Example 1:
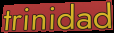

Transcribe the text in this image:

trinidad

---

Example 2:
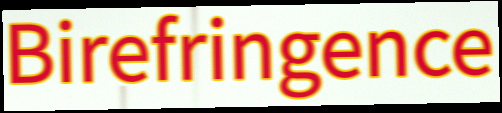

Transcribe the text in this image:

Birefringence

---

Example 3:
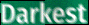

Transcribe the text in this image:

Darkest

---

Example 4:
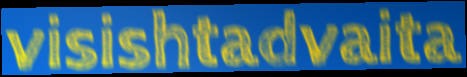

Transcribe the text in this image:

visishtadvaita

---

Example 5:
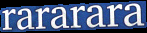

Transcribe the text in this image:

rararara